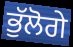
ਭੁੱਲੋਗੇ